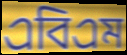
এবিএম